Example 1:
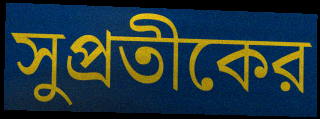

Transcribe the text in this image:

সুপ্রতীকের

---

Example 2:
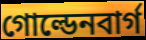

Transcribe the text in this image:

গোল্ডেনবার্গ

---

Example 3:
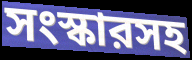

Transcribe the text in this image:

সংস্কারসহ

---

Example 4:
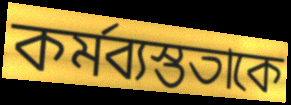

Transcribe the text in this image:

কর্মব্যস্ততাকে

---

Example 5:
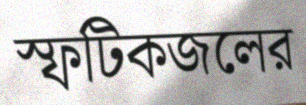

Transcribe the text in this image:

স্ফটিকজলের